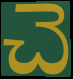
చె